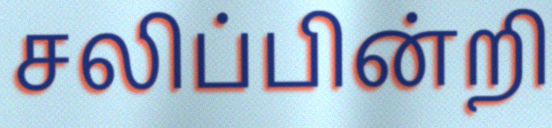
சலிப்பின்றி